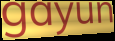
gayun